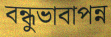
বন্ধুভাবাপন্ন